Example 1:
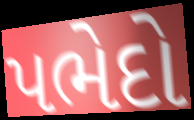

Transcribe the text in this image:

પભેદો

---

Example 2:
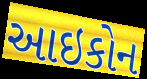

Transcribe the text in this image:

આઇકોન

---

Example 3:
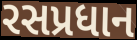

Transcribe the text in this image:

રસપ્રધાન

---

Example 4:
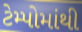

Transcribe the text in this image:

ટેમ્પોમાંથી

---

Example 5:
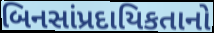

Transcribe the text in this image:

બિનસાંપ્રદાયિકતાનો